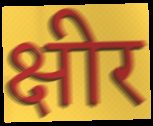
क्षीर